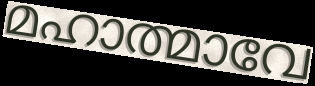
മഹാത്മാവേ